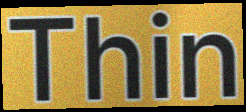
Thin